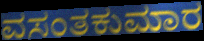
ವಸಂತಕುಮಾರ